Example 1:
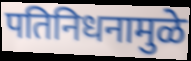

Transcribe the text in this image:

पतिनिधनामुळे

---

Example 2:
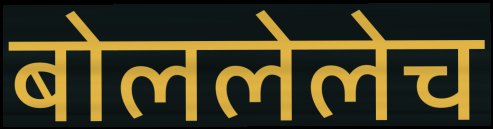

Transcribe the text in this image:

बोललेलेच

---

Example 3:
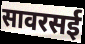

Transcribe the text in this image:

सावरसई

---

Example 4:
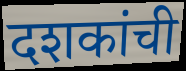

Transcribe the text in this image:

दशकांची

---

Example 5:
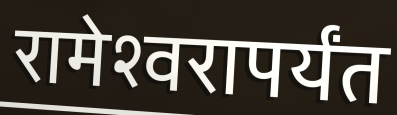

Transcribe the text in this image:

रामेश्वरापर्यंत